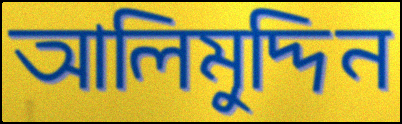
আলিমুদ্দিন